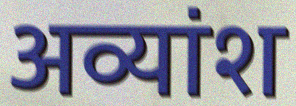
अव्यांश